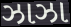
ઝાઝા